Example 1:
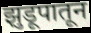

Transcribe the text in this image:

झुडूपातून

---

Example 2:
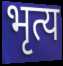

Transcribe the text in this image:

भृत्य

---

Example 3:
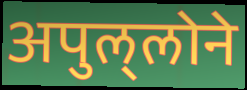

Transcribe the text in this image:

अपुल्लोने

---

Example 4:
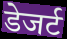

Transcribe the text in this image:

डेजर्ट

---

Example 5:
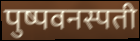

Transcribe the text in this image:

पुष्पवनस्पती